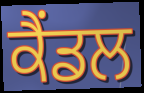
ਕੈਂਡਲ